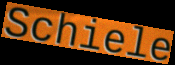
Schiele